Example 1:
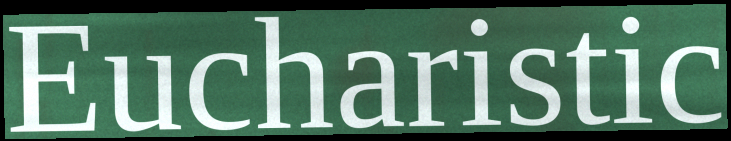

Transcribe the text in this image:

Eucharistic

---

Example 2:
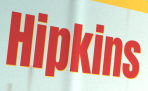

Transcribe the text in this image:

Hipkins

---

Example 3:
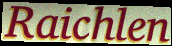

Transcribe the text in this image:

Raichlen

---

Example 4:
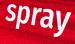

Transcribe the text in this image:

spray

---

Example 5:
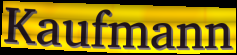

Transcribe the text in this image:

Kaufmann